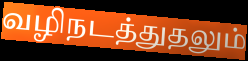
வழிநடத்துதலும்